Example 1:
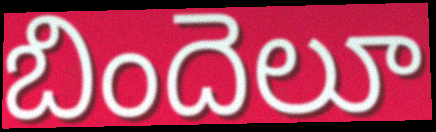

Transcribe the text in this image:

బిందెలూ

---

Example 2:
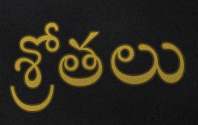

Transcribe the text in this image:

శ్రోతలు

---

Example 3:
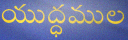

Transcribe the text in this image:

యుద్ధముల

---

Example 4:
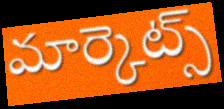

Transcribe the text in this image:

మార్కెట్స్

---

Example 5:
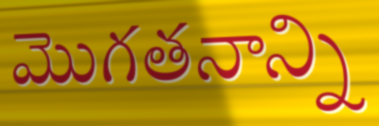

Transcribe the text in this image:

మొగతనాన్ని